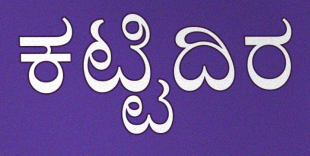
ಕಟ್ಟಿದಿರ